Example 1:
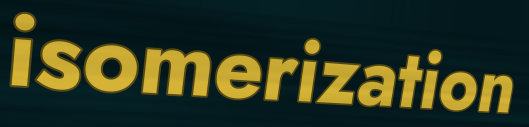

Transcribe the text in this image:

isomerization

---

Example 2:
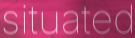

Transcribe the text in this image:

situated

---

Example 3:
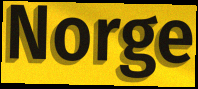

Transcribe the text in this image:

Norge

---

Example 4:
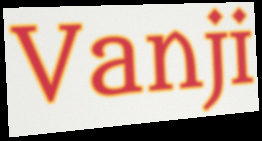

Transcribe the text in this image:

Vanji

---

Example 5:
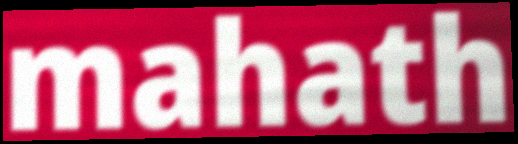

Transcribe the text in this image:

mahath